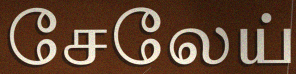
சேலேய்